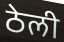
ठेली